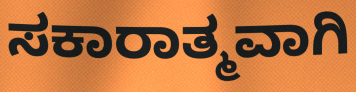
ಸಕಾರಾತ್ಮವಾಗಿ